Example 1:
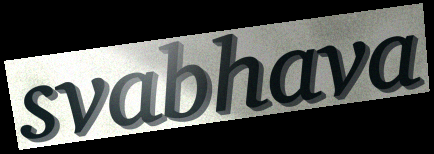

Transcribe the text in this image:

svabhava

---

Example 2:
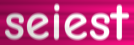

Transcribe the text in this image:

seiest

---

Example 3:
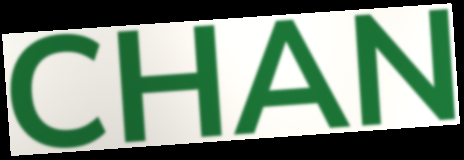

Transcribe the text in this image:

CHAN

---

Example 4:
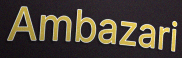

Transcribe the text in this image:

Ambazari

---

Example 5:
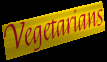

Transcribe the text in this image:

Vegetarians